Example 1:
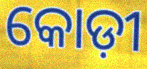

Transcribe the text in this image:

କୋଡ଼ୀ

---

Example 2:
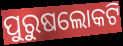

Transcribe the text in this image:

ପୁରୁଷଲୋକଟି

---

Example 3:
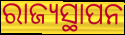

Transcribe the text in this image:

ରାଜ୍ୟସ୍ଥାପନ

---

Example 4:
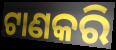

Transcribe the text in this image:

ଟାଣକରି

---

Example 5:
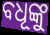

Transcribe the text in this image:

ବଧୂଙ୍କୁ